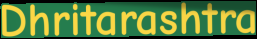
Dhritarashtra